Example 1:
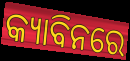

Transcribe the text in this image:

କ୍ୟାବିନରେ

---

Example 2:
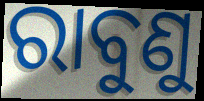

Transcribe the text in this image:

ରାବୁଣୁ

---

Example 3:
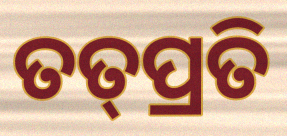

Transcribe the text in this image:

ତତ୍‌ପ୍ରତି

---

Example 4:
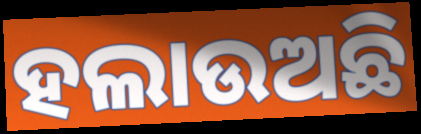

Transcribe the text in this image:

ହଲାଉଅଛି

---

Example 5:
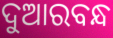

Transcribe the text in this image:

ଦୁଆରବନ୍ଧ